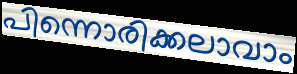
പിന്നൊരിക്കലാവാം